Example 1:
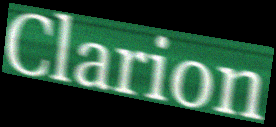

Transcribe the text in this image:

Clarion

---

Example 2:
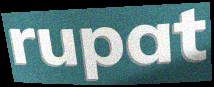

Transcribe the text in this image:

rupat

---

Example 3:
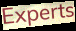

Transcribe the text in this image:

Experts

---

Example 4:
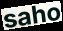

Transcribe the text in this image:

saho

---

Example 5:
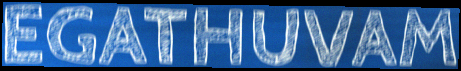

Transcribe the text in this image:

EGATHUVAM